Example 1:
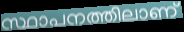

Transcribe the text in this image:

സ്ഥാപനത്തിലാണ്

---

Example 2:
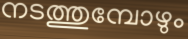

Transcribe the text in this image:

നടത്തുമ്പോഴും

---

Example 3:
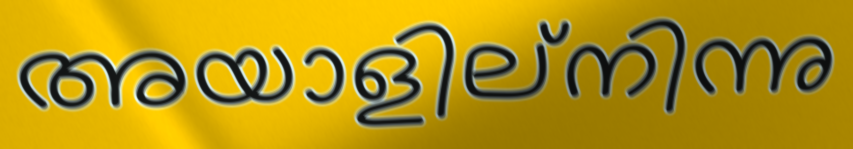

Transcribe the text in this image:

അയാളില്നിന്നു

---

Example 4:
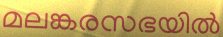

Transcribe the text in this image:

മലങ്കരസഭയിൽ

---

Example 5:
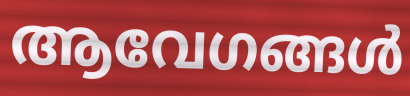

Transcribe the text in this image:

ആവേഗങ്ങൾ